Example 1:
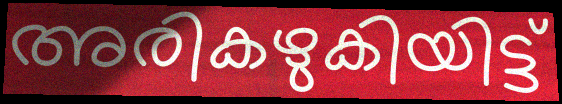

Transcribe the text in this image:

അരികഴുകിയിട്ട്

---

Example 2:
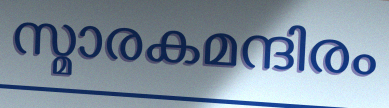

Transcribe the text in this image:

സ്മാരകമന്ദിരം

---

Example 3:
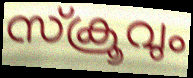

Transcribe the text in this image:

സ്ക്രൂവും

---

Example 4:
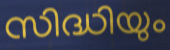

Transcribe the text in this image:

സിദ്ധിയും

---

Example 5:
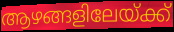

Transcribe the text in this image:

ആഴങ്ങളിലേയ്ക്ക്